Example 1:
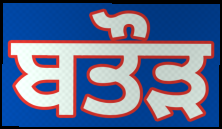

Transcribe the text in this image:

ਬਤੌੜ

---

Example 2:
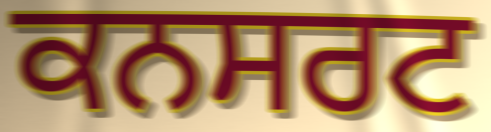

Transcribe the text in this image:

ਕਨਸਰਟ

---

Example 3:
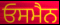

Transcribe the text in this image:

ਓਸਮੈਨ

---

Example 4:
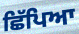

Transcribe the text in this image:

ਛਿੱਪਿਆ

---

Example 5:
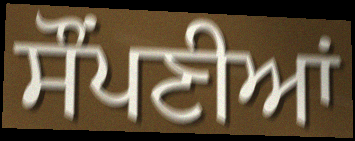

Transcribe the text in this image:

ਸੌਂਪਣੀਆਂ